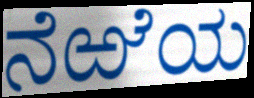
ನೆಱೆಯ